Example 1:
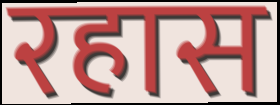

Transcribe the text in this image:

रहास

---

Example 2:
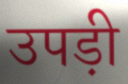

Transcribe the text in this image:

उपड़ी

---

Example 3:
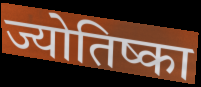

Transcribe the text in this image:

ज्योतिष्का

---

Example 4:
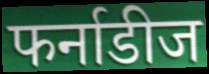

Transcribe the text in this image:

फर्नाडीज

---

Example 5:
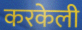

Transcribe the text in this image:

करकेली